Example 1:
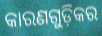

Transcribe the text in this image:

କାରଣଗୁଡ଼ିକର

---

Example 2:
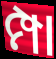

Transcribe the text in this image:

ମ୍ପା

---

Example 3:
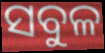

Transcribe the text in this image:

ସବୁଳ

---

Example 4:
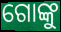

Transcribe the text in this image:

ଗୋଙ୍କୁ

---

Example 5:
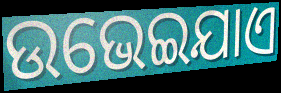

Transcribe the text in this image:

ଉଭେଇଯାଏ